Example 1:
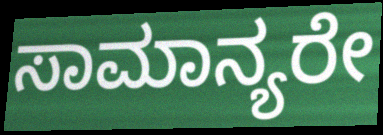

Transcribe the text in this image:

ಸಾಮಾನ್ಯರೇ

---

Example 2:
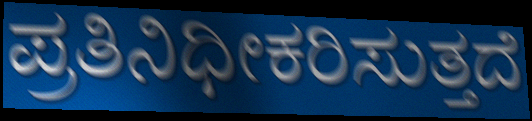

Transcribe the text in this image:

ಪ್ರತಿನಿಧೀಕರಿಸುತ್ತದೆ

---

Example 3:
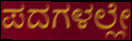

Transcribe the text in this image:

ಪದಗಳಲ್ಲೇ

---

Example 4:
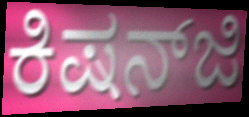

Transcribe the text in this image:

ಕಿಷನ್‌ಜಿ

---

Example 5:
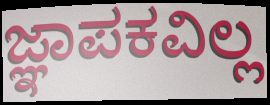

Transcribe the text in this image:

ಜ್ಞಾಪಕವಿಲ್ಲ